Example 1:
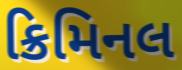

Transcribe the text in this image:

ક્રિમિનલ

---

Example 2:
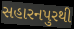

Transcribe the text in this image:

સહારનપુરથી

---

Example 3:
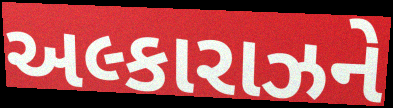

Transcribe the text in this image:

અલ્કારાઝને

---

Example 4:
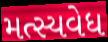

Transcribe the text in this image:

મત્સ્યવેધ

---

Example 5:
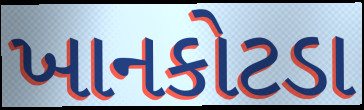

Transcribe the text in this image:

ખાનકોટડા